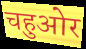
चहुओर